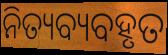
ନିତ୍ୟବ୍ୟବହୃତ